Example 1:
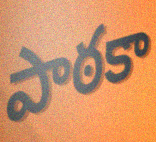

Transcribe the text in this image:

పాఠకా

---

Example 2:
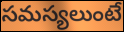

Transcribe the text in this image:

సమస్యలుంటే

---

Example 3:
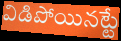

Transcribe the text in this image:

విడిపోయినట్టే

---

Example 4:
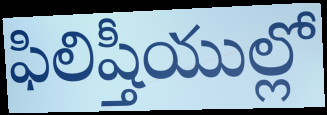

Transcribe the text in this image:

ఫిలిష్తీయుల్లో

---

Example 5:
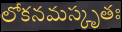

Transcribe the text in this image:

లోకనమస్కృతః